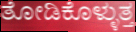
ತೋಡಿಕೊಳ್ಳುತ್ತ